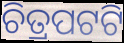
ଚିତ୍ରପଟଟି